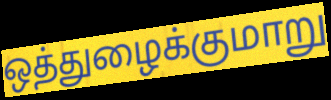
ஒத்துழைக்குமாறு